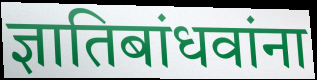
ज्ञातिबांधवांना